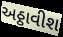
અઠ્ઠાવીશ